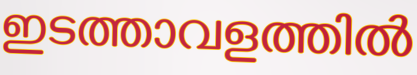
ഇടത്താവളത്തിൽ